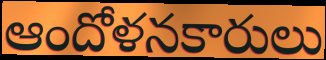
ఆందోళనకారులు